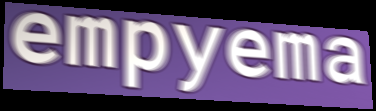
empyema